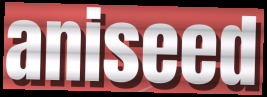
aniseed